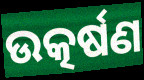
ଉତ୍କର୍ଷଣ